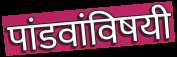
पांडवांविषयी